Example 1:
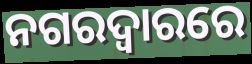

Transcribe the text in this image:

ନଗରଦ୍ୱାରରେ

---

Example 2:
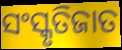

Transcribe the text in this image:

ସଂସ୍କୃତିଜାତ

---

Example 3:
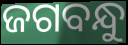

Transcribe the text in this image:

ଜଗବନ୍ଧୁ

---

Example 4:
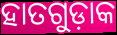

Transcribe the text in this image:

ହାତଗୁଡ଼ାକ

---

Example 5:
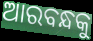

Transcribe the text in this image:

ଆରବନ୍ଧକୁ